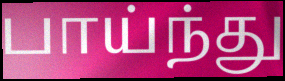
பாய்ந்து